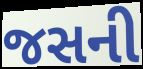
જસની